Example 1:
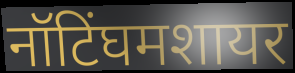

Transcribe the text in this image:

नॉटिंघमशायर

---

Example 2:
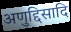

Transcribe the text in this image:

अणुद्दिसादि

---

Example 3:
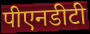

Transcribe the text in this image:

पीएनडीटी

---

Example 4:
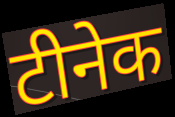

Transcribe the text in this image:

टीनेक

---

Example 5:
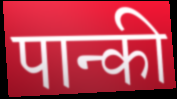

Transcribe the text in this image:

पान्की